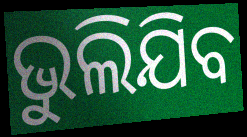
ଭୁଲିଯିବ